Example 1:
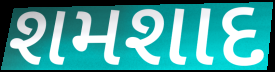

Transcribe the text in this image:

શમશાદ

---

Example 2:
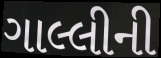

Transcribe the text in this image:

ગાલ્લીની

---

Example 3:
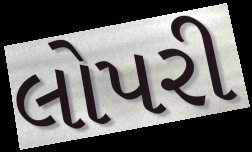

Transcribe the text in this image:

લોપરી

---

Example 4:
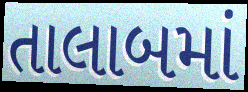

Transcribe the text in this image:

તાલાબમાં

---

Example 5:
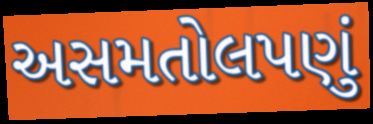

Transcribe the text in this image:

અસમતોલપણું